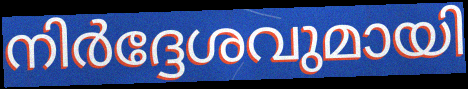
നിർദ്ദേശവുമായി